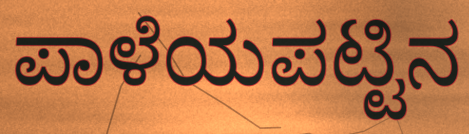
ಪಾಳೆಯಪಟ್ಟಿನ